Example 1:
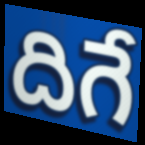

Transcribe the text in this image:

దిగే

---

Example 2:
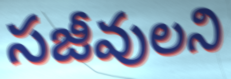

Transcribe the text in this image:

సజీవులని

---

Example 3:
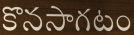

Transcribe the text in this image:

కొనసాగటం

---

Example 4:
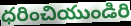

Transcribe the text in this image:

ధరించియుండిరి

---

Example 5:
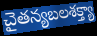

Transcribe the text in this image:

చైతన్యబలశక్త్యా